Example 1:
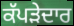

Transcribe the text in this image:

ਕੱਪੜੇਦਾਰ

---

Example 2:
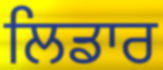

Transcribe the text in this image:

ਲਿਡਾਰ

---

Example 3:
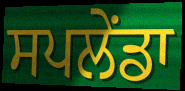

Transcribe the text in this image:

ਸਪਲੇਂਡਾ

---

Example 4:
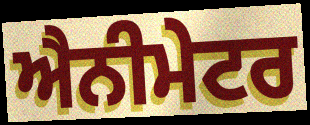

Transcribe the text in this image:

ਐਨੀਮੇਟਰ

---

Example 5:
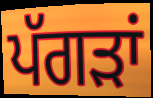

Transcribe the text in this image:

ਪੱਗੜਾਂ